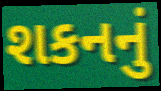
શકનનું